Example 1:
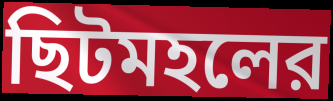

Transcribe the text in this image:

ছিটমহলের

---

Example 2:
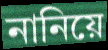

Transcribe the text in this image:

নানিয়ে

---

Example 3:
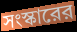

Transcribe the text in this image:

সংস্কারের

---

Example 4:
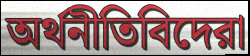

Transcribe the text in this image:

অর্থনীতিবিদেরা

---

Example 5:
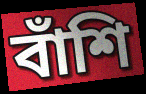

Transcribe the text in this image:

বাঁশি